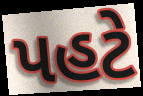
પહટે